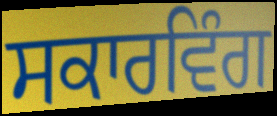
ਸਕਾਰਵਿੰਗ